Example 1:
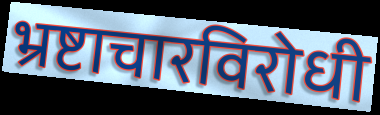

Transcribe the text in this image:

भ्रष्टाचारविरोधी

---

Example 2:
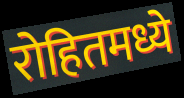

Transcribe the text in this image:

रोहितमध्ये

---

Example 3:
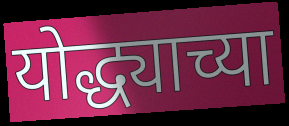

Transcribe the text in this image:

योद्ध्याच्या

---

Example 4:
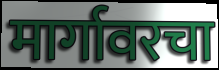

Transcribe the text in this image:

मार्गावरचा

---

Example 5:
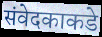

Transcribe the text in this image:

संवेदकाकडे